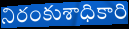
నిరంకుశాధికారి